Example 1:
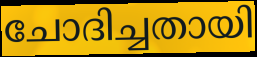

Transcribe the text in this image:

ചോദിച്ചതായി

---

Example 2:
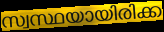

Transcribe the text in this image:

സ്വസ്ഥയായിരിക്ക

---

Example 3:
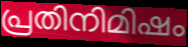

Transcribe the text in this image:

പ്രതിനിമിഷം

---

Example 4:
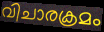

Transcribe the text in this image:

വിചാരക്രമം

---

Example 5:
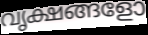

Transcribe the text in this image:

വൃക്ഷങ്ങളോ